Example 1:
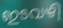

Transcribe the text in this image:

ഇടവഴി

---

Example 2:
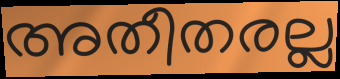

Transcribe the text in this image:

അതീതരല്ല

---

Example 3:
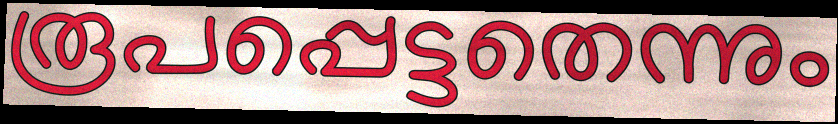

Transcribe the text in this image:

രൂപപ്പെട്ടതെന്നും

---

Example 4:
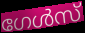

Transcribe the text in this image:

ഗേൾസ്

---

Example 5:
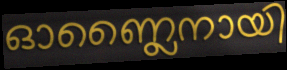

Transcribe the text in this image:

ഓണ്ലൈനായി